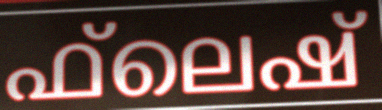
ഫ്‌ലെഷ്